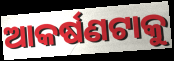
ଆକର୍ଷଣଟାକୁ